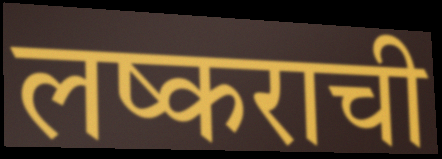
लष्कराची